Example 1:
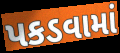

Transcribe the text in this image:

પકડવામાં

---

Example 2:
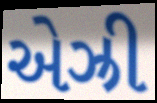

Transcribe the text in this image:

એઝ્રી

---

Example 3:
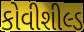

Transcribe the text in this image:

કોવીશીલ્ડ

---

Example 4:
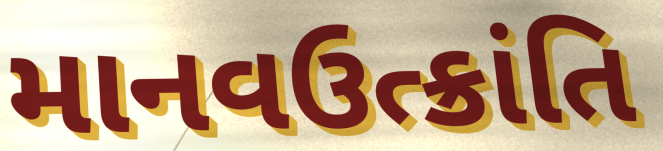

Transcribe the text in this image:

માનવઉત્ક્રાંતિ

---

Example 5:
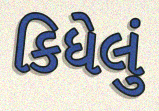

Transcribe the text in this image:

કિધેલું